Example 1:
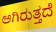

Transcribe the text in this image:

ಅಗಿರುತ್ತದೆ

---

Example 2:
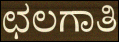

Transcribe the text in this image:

ಛಲಗಾತಿ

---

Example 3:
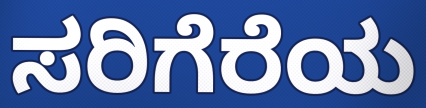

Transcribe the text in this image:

ಸರಿಗೆರೆಯ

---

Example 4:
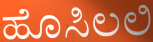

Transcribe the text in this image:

ಹೊಸಿಲಲಿ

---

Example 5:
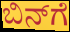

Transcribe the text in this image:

ಬಿನ್‌ಗೆ